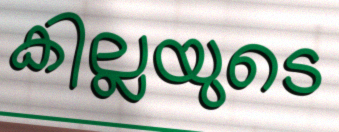
കില്ലയുടെ